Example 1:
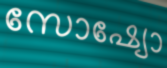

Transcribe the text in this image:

സോഷ്യോ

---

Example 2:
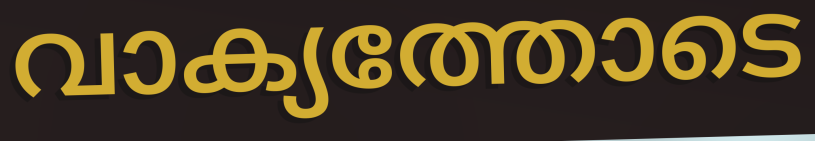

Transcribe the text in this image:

വാക്യത്തോടെ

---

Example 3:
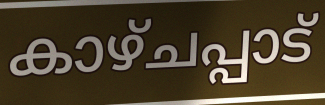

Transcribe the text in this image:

കാഴ്ചപ്പാട്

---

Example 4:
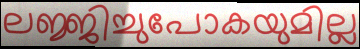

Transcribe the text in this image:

ലജ്ജിച്ചുപോകയുമില്ല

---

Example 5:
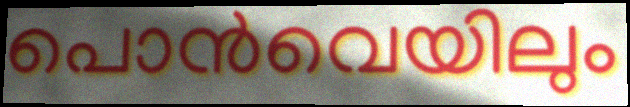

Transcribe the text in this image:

പൊൻവെയിലും